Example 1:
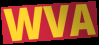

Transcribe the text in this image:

WVA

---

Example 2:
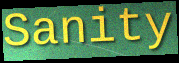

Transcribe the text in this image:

Sanity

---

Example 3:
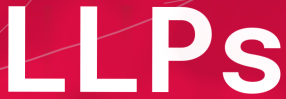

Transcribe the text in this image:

LLPs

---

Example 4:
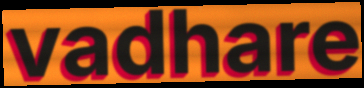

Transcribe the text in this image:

vadhare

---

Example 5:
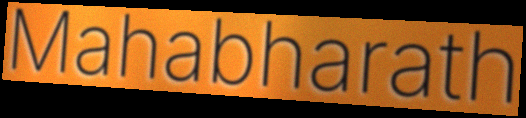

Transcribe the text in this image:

Mahabharath